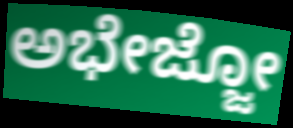
ಅಭೇಜ್ಜೋ